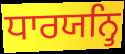
ਧਾਰਯਨ੍ਤਿ